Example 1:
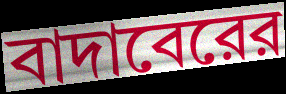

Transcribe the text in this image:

বাদাবেরের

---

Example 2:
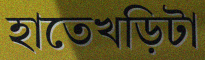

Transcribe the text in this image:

হাতেখড়িটা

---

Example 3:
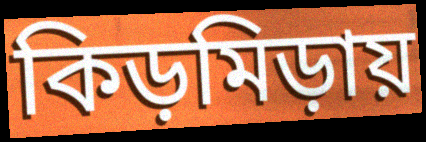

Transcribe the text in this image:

কিড়মিড়ায়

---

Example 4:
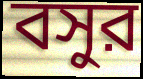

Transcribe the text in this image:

বসুর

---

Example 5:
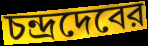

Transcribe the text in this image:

চন্দ্রদেবের